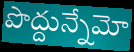
పొద్దున్నేమో